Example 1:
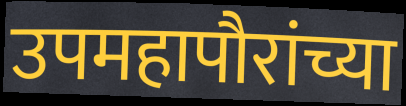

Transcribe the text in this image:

उपमहापौरांच्या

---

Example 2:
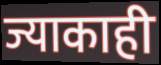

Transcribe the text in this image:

ज्याकाही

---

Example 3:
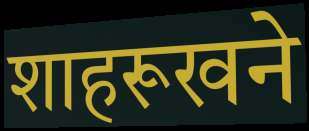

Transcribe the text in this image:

शाहरूखने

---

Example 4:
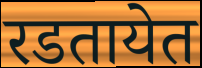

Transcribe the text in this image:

रडतायेत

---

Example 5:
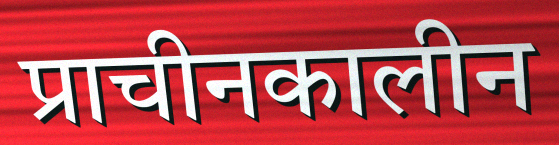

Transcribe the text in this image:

प्राचीनकालीन